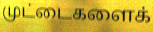
முட்டைகளைக்